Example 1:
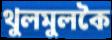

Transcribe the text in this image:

থুলমুলকৈ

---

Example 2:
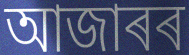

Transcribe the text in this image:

আজাৰৰ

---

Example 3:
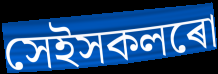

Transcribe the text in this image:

সেইসকলৰো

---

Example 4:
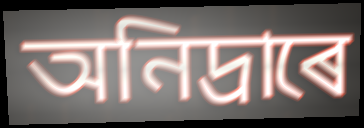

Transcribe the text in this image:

অনিদ্ৰাৰে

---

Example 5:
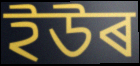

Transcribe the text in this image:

ইউৰ